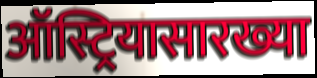
ऑस्ट्रियासारख्या